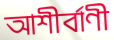
আশীর্বাণী